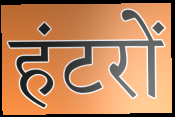
हंटरों